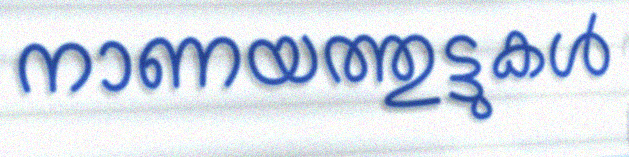
നാണയത്തുട്ടുകൾ